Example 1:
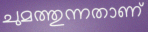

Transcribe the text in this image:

ചുമത്തുന്നതാണ്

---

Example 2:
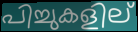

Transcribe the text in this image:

പിച്ചുകളില്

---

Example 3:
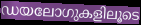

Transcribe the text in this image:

ഡയലോഗുകളിലൂടെ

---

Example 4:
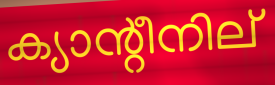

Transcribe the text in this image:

ക്യാന്റീനില്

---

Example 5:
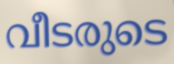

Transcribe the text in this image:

വീടരുടെ